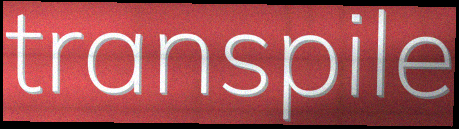
transpile